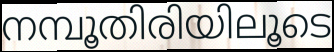
നമ്പൂതിരിയിലൂടെ